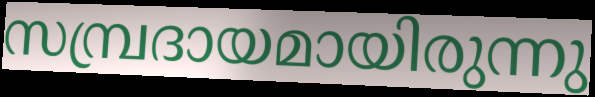
സമ്പ്രദായമായിരുന്നു